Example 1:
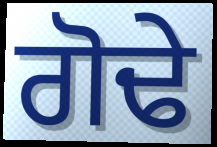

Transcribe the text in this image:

ਗੋਢੇ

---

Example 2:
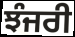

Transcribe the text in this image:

ਝੰਜਰੀ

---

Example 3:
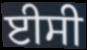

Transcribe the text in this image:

ਈਸੀ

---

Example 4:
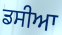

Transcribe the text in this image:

ਡਸੀਆ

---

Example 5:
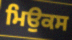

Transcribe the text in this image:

ਮਿਉਕਸ